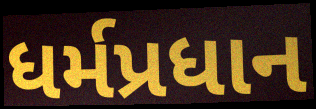
ધર્મપ્રધાન